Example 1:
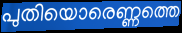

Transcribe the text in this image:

പുതിയൊരെണ്ണത്തെ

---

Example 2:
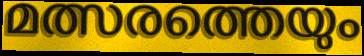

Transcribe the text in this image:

മത്സരത്തെയും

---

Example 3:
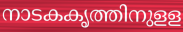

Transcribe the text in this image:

നാടകകൃത്തിനുളള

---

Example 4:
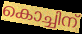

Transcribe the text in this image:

കൊച്ചിന്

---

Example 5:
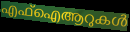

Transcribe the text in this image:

എഫ്ഐആറുകൾ